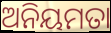
ଅନିୟମତା